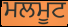
ਮਲਮੂਟ